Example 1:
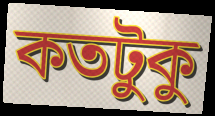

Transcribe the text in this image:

কতটুকু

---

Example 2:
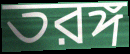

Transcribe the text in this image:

তরঙ্গ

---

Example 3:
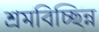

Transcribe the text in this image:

শ্রমবিচ্ছিন্ন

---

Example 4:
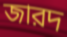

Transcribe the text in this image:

জারদ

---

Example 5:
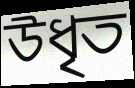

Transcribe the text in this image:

উধৃত